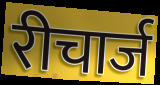
रीचार्ज